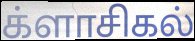
க்ளாசிகல்